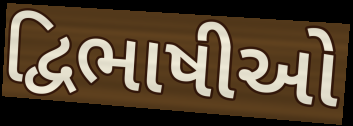
દ્વિભાષીઓ